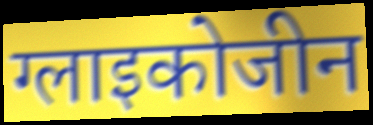
ग्लाइकोजीन